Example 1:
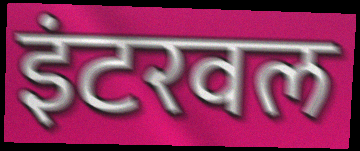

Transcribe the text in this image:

इंटरवल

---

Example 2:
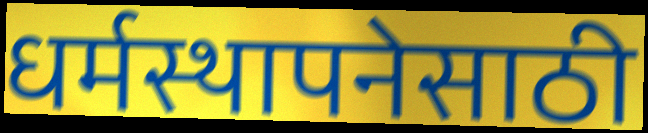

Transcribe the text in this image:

धर्मस्थापनेसाठी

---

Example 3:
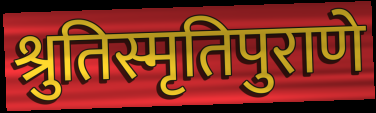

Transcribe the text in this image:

श्रुतिस्मृतिपुराणे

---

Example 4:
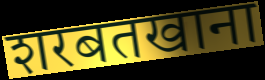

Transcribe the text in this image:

शरबतखाना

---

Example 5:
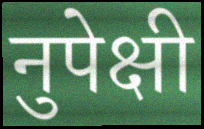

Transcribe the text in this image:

नुपेक्षी